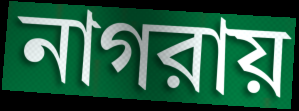
নাগরায়